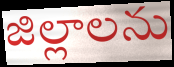
జిల్లాలను